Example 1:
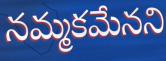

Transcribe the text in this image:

నమ్మకమేనని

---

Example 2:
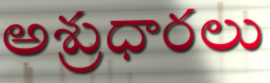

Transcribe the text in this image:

అశ్రుధారలు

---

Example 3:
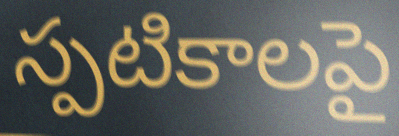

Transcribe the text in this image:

స్పటికాలపై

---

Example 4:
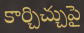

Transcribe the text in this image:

కార్చిచ్చుపై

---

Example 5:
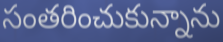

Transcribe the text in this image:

సంతరించుకున్నాను